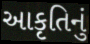
આકૃતિનું